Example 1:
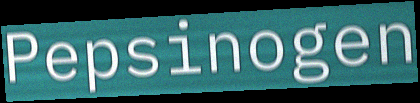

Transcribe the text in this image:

Pepsinogen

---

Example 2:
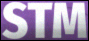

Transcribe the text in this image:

STM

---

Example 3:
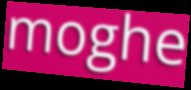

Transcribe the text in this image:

moghe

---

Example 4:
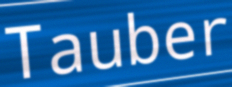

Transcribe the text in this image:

Tauber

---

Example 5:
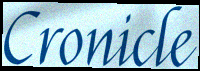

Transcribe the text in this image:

Cronicle